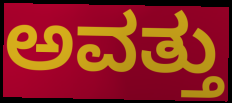
ಅವತ್ತು